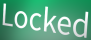
Locked